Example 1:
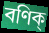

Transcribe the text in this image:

বণিক্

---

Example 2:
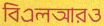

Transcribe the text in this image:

বিএলআরও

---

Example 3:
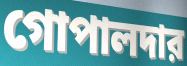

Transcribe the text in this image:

গোপালদার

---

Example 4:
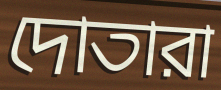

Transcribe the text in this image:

দোতারা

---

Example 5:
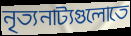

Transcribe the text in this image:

নৃত্যনাট্যগুলোতে